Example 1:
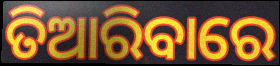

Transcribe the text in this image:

ତିଆରିବାରେ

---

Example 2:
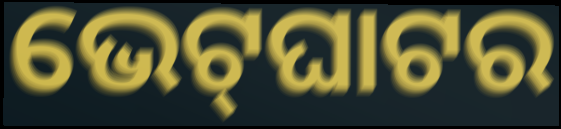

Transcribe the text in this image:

ଭେଟ୍‌ଘାଟର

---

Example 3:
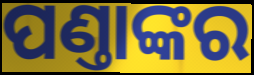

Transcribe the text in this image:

ପଣ୍ତାଙ୍କର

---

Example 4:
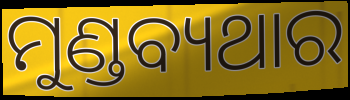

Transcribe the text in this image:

ମୁଣ୍ଡବ୍ୟଥାର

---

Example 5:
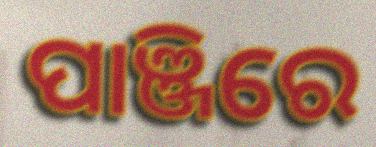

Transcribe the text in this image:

ପାଞ୍ଜିରେ